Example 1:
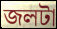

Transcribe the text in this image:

জলটা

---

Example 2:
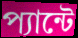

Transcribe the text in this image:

প্যান্টে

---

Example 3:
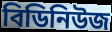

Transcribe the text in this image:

বিডিনিউজ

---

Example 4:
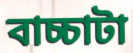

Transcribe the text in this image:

বাচ্চাটা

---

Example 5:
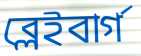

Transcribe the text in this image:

ব্লেইবার্গ